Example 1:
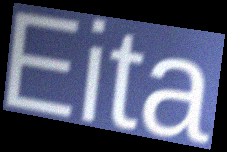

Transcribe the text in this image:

Eita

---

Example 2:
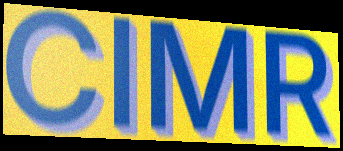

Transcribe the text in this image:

CIMR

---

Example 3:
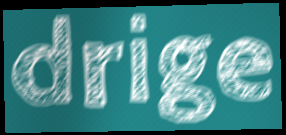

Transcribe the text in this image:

drige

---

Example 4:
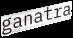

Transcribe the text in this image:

ganatra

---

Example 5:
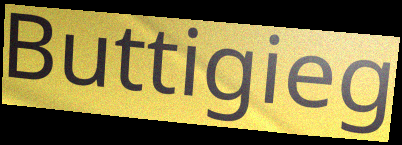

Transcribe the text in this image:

Buttigieg